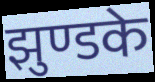
झुण्डके